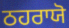
ਠਹਰਾਯੋ